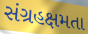
સંગ્રહક્ષમતા